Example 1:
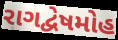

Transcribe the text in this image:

રાગદ્વેષમોહ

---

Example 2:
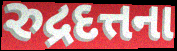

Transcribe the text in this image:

રુદ્રદત્તના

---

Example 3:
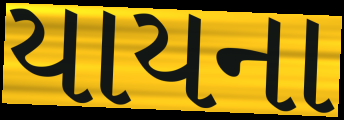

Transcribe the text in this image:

યાયના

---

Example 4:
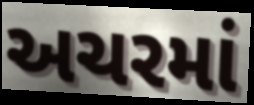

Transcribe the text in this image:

અચરમાં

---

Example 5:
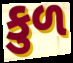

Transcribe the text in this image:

કુળ